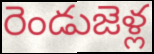
రెండుజెళ్ల